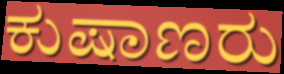
ಕುಷಾಣರು